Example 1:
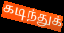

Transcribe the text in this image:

கடிந்துக்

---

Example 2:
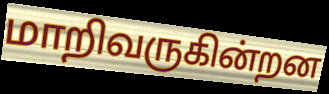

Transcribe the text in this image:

மாறிவருகின்றன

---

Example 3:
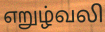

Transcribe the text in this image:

எறுழ்வலி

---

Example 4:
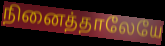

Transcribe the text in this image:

நினைத்தாலேயே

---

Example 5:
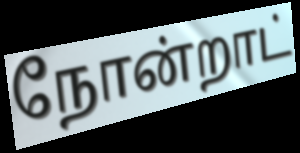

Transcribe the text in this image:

நோன்றாட்